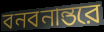
বনবনান্তরে